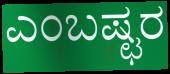
ಎಂಬಷ್ಟರ